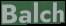
Balch